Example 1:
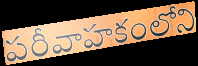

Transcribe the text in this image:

పరీవాహకంలోని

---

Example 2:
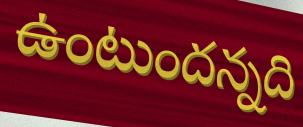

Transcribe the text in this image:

ఉంటుందన్నది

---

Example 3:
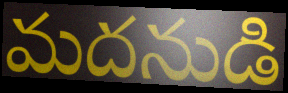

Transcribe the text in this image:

మదనుడి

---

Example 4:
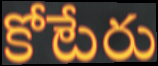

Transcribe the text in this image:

కోటేరు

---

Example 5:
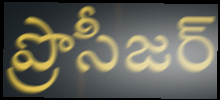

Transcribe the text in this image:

ప్రొసీజర్